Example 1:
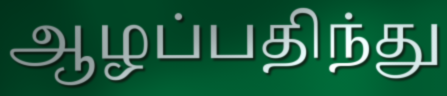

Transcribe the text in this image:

ஆழப்பதிந்து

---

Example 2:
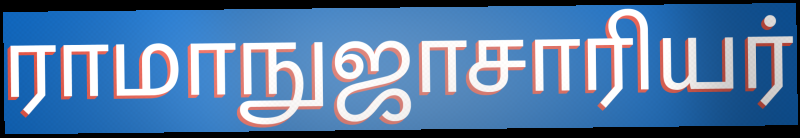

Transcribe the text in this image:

ராமாநுஜாசாரியர்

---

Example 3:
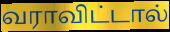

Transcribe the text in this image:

வராவிட்டால்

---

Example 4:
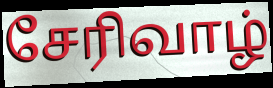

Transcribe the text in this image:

சேரிவாழ்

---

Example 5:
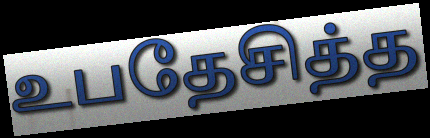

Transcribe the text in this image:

உபதேசித்த